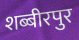
शब्‍बीरपुर